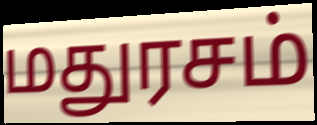
மதுரசம்